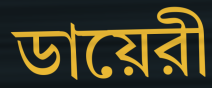
ডায়েরী